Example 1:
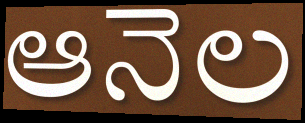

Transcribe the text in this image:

ఆనెల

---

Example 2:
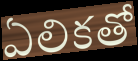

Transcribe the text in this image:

ఏలికతో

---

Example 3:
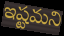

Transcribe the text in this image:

ఇష్టమని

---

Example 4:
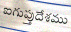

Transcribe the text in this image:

ఐగుప్తుదేశము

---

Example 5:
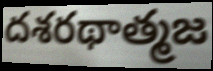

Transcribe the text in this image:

దశరథాత్మజ